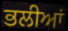
ਭਲੀਆਂ